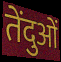
तेंदुओं